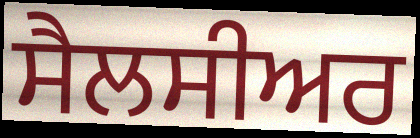
ਸੈਲਸੀਅਰ